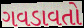
ગવડાવતો